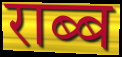
राब्ब